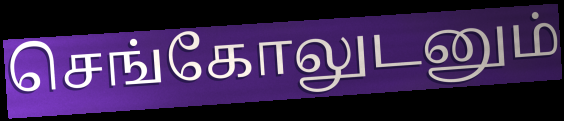
செங்கோலுடனும்